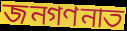
জনগণনাত